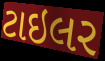
ટાઇલર